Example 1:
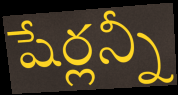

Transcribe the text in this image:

షేర్లన్నీ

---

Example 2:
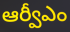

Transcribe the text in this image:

ఆర్వీఎం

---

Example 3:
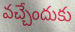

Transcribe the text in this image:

వచ్చేందుకు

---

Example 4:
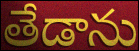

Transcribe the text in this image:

తేడాను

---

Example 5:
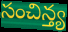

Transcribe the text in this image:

సంచిన్త్య